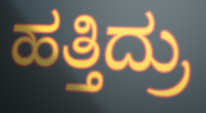
ಹತ್ತಿದ್ರು